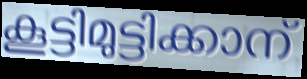
കൂട്ടിമുട്ടിക്കാന്